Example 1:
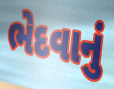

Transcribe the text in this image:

ભેદવાનું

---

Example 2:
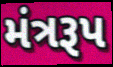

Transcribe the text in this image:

મંત્રરૂપ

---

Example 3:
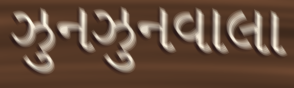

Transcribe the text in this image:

ઝુનઝુનવાલા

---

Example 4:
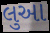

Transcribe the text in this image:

લુઆ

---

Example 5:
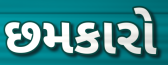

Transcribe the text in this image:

છમકારો